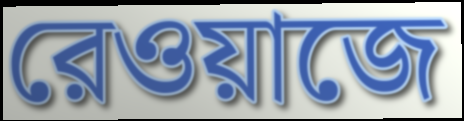
রেওয়াজে